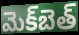
మెక్‌బెత్